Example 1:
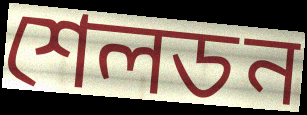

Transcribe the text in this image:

শেলডন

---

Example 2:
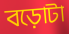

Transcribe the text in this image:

বড়োটা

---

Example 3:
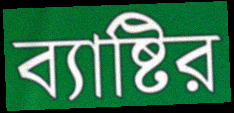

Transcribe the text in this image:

ব্যাষ্টির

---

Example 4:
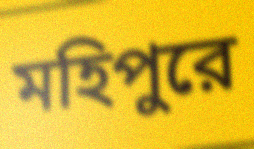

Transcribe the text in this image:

মহিপুরে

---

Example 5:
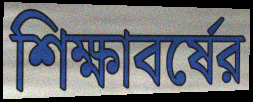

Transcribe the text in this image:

শিক্ষাবর্ষের